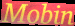
Mobin